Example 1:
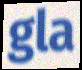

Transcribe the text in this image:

gla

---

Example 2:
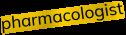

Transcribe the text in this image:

pharmacologist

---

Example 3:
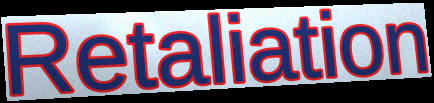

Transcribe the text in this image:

Retaliation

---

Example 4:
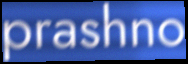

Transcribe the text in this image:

prashno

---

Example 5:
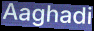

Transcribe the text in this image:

Aaghadi